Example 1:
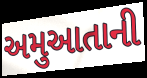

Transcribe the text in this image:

અમુઆતાની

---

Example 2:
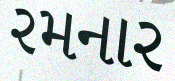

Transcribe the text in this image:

રમનાર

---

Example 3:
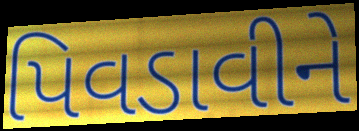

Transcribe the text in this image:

પિવડાવીને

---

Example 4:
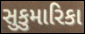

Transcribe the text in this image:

સુકુમારિકા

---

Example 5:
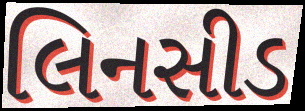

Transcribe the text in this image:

લિનસીડ